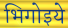
भिगोइये